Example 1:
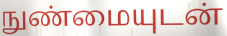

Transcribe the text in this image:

நுண்மையுடன்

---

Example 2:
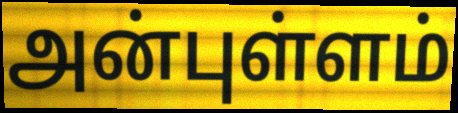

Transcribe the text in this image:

அன்புள்ளம்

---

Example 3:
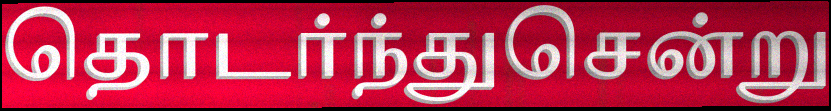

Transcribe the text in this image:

தொடர்ந்துசென்று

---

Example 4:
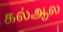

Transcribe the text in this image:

கல்ஆல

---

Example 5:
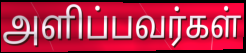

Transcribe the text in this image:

அளிப்பவர்கள்